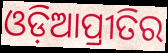
ଓଡ଼ିଆପ୍ରୀତିର